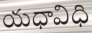
యధావిధి